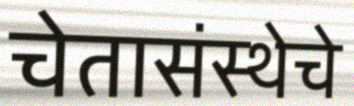
चेतासंस्थेचे